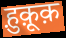
ह़ुक़ूक़